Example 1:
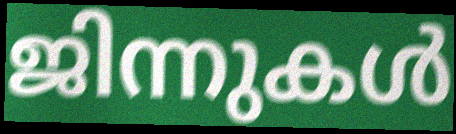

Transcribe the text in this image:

ജിന്നുകൾ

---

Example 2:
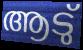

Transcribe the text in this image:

ആടു്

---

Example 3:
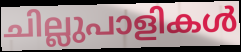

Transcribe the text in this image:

ചില്ലുപാളികൾ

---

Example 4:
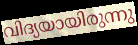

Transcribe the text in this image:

വിദ്യയായിരുന്നു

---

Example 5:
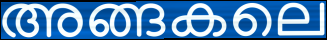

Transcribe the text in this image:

അങ്ങകലെ